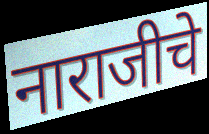
नाराजीचे